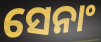
ସେନାଂ